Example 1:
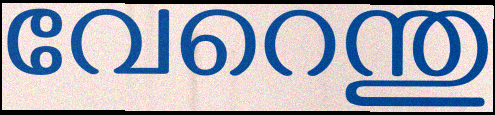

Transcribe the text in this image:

വേറെന്തു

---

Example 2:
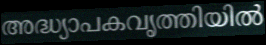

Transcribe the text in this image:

അദ്ധ്യാപകവൃത്തിയിൽ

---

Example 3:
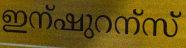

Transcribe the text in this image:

ഇന്ഷുറന്സ്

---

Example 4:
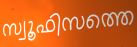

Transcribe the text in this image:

സ്വൂഫിസത്തെ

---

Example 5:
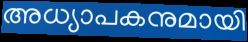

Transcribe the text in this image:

അധ്യാപകനുമായി